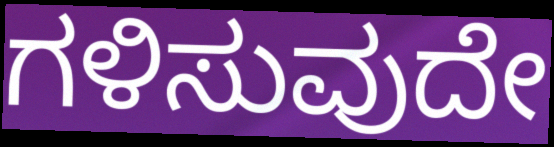
ಗಳಿಸುವುದೇ